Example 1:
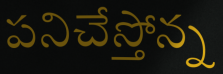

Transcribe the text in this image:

పనిచేస్తోన్న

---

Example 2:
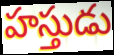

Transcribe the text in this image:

హస్తుడు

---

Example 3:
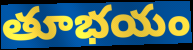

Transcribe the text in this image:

తూభయం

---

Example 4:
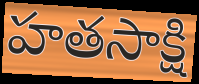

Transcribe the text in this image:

హతసాక్షి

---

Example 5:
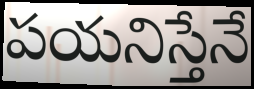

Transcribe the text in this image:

పయనిస్తేనే